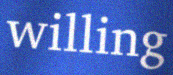
willing